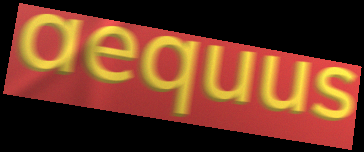
aequus